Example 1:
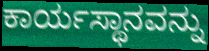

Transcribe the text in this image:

ಕಾರ್ಯಸ್ಥಾನವನ್ನು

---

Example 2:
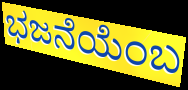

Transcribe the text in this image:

ಭಜನೆಯೆಂಬ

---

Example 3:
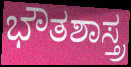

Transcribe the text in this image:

ಭೌತಶಾಸ್ತ್ರ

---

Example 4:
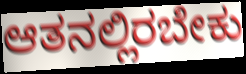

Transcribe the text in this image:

ಆತನಲ್ಲಿರಬೇಕು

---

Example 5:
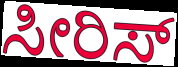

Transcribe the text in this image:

ಸೀರಿಸ್